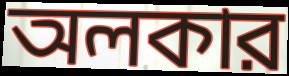
অলকার